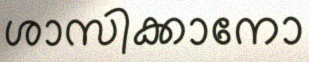
ശാസിക്കാനോ